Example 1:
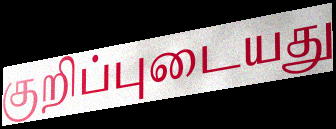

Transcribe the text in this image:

குறிப்புடையது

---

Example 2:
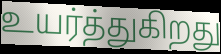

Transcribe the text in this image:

உயர்த்துகிறது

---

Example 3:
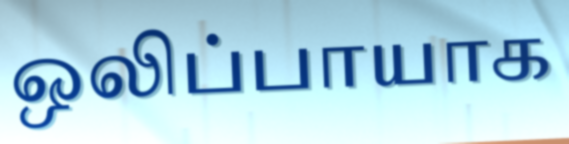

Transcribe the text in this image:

ஒலிப்பாயாக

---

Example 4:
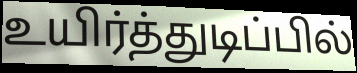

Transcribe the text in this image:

உயிர்த்துடிப்பில்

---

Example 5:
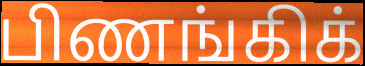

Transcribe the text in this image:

பிணங்கிக்